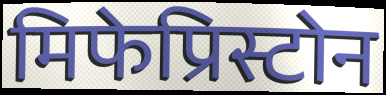
मिफेप्रिस्टोन